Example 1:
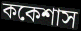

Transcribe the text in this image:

ককেশাস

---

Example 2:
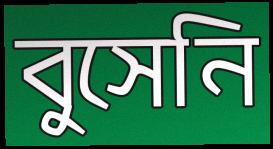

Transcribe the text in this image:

বুসেনি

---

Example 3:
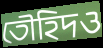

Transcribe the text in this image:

তৌহিদও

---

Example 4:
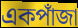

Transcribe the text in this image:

একপাঁজা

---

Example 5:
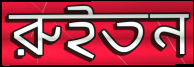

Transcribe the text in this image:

রুইতন